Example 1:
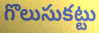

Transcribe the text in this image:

గొలుసుకట్టు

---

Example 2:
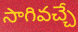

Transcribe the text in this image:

సాగివచ్చే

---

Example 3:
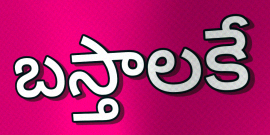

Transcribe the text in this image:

బస్తాలకే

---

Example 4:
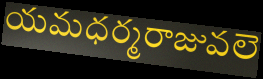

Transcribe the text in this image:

యమధర్మరాజువలె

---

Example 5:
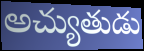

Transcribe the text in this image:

అచ్యుతుడు